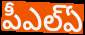
పీఎల్ఏ